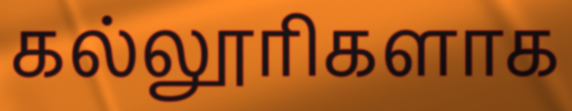
கல்லூரிகளாக